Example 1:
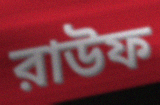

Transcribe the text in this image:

রাউফ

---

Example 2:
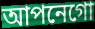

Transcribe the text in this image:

আপনেগো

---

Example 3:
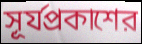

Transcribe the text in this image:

সূর্যপ্রকাশের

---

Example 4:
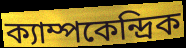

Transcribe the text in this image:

ক্যাম্পকেন্দ্রিক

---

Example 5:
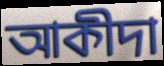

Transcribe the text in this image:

আকীদা